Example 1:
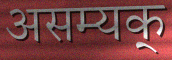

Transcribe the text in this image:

असम्यक्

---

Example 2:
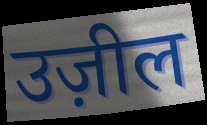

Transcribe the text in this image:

उज़ील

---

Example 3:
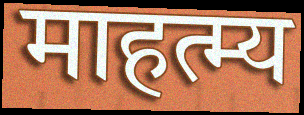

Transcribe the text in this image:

माहत्म्य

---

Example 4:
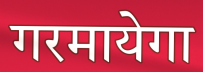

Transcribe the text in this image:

गरमायेगा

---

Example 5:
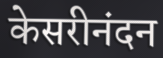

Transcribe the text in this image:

केसरीनंदन